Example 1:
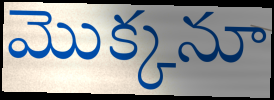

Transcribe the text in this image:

మొక్కనూ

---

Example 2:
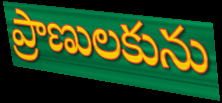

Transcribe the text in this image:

ప్రాణులకును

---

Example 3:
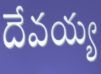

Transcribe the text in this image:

దేవయ్య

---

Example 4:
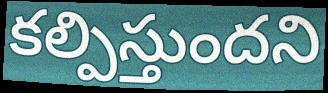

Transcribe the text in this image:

కల్పిస్తుందని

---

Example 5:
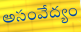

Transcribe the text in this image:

అసంవేద్యం